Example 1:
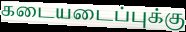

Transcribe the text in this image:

கடையடைப்புக்கு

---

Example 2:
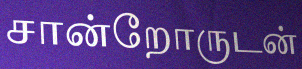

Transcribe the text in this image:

சான்றோருடன்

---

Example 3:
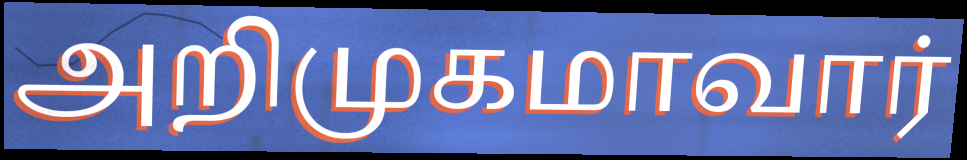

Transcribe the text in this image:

அறிமுகமாவார்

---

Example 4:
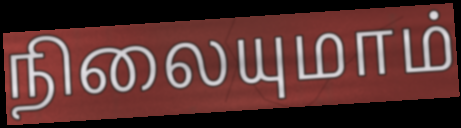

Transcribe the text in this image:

நிலையுமாம்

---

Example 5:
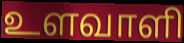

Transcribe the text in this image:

உளவாளி